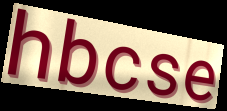
hbcse